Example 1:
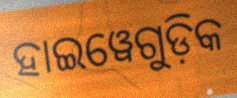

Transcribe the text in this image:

ହାଇୱେଗୁଡ଼ିକ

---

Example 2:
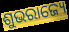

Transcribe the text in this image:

ଶୁଭରାଜ୍ୟେ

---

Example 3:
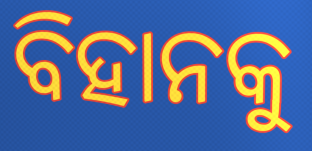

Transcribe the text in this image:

ବିହାନକୁ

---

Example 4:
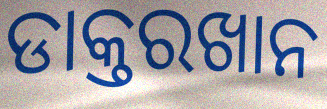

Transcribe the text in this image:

ଡାକ୍ତରଖାନ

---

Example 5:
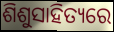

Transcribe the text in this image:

ଶିଶୁସାହିତ୍ୟରେ